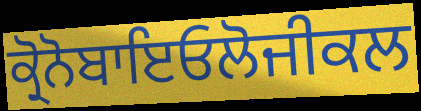
ਕ੍ਰੋਨੋਬਾਇਓਲੋਜੀਕਲ